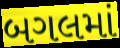
બગલમાં